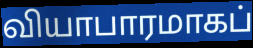
வியாபாரமாகப்